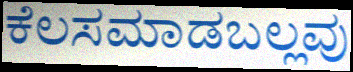
ಕೆಲಸಮಾಡಬಲ್ಲವು